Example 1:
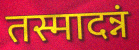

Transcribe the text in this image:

तस्मादन्नं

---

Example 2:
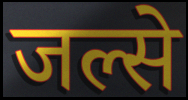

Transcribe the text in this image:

जल्से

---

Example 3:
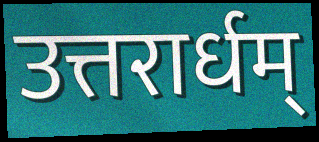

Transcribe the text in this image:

उत्तरार्धम्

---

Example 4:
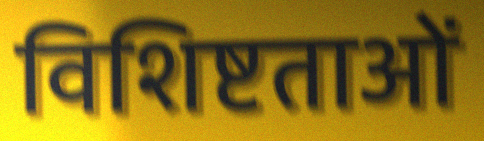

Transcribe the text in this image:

विशिष्टताओं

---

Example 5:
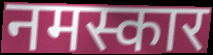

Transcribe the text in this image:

नमस्कार